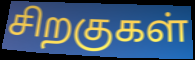
சிறகுகள்